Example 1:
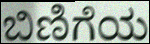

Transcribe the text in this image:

ಬಿಣಿಗೆಯ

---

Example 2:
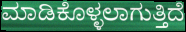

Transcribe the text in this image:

ಮಾಡಿಕೊಳ್ಳಲಾಗುತ್ತಿದೆ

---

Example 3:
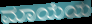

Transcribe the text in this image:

ಮಾಯೆಯ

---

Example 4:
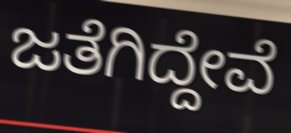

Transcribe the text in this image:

ಜತೆಗಿದ್ದೇವೆ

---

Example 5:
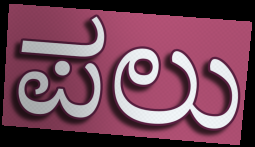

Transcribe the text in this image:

ಪಲು